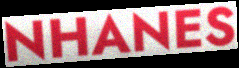
NHANES